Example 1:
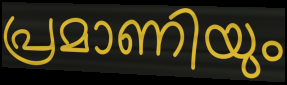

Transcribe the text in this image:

പ്രമാണിയും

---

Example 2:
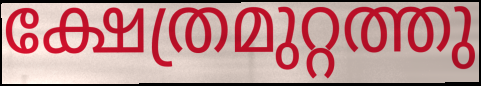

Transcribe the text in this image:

ക്ഷേത്രമുറ്റത്തു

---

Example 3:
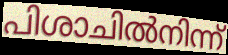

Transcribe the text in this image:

പിശാചിൽനിന്ന്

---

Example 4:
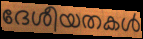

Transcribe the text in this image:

ദേശീയതകൾ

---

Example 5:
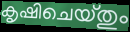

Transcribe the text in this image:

കൃഷിചെയ്തും